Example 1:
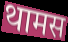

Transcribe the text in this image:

थामस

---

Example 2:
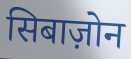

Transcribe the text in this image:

सिबाज़ोन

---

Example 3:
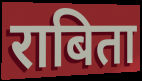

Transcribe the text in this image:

राबिता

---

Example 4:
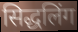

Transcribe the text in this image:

सिद्धलिंग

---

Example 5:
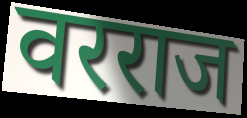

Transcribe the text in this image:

वरराज